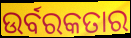
ଉର୍ବରକତାର